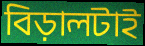
বিড়ালটাই